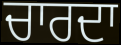
ਚਾਰਦਾ